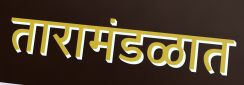
तारामंडळात